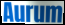
Aurum